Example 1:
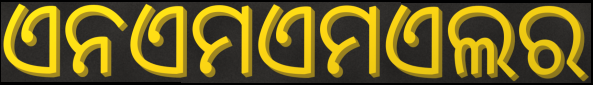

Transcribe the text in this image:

ଏନଏମଏମଏଲର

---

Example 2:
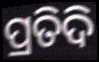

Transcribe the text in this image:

ପ୍ରତିଦି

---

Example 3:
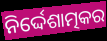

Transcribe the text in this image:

ନିର୍ଦ୍ଦେଶାତ୍ମକର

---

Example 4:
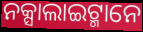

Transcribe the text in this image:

ନକ୍ସାଲାଇଟ୍ମାନେ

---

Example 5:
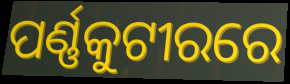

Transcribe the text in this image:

ପର୍ଣ୍ଣକୁଟୀରରେ